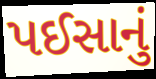
પઈસાનું